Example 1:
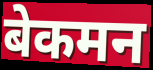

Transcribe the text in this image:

बेकमन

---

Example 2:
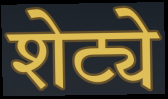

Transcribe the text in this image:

शेट्ये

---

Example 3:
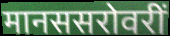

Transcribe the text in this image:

मानससरोवरीं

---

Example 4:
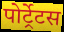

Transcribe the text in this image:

पोर्ट्रेटस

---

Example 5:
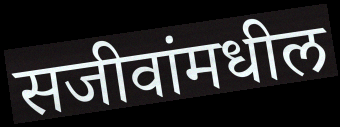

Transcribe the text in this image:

सजीवांमधील